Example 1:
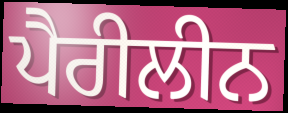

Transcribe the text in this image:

ਪੈਰੀਲੀਨ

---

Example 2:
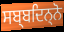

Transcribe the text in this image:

ਸਬ੍ਬਦਿਨ੍ਨੋ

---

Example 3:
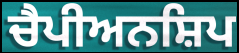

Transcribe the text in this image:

ਚੈਪੀਅਨਸ਼ਿਪ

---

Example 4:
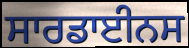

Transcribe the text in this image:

ਸਾਰਡਾਈਨਸ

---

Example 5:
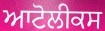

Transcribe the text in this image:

ਆਟੋਲੀਕਸ